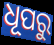
ଧୂପରୁ